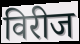
विरीज